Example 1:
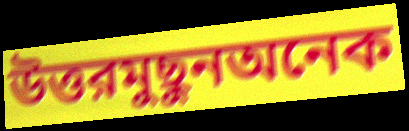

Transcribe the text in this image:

উত্তরমুছুনঅনেক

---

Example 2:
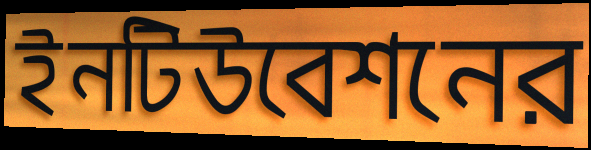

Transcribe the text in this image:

ইনটিউবেশনের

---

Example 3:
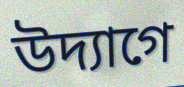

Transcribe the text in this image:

উদ্যাগে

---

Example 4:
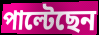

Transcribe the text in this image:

পাল্টেছেন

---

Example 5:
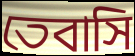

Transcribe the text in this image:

তেবাসি